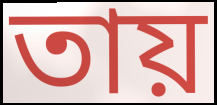
তায়